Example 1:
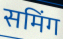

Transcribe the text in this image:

समिंग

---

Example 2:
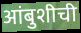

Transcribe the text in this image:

आंबुशीची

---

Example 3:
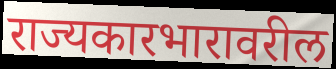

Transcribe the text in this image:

राज्यकारभारावरील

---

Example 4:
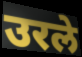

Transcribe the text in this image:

उरले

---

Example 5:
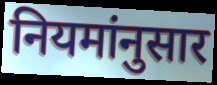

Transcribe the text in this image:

नियमांनुसार